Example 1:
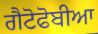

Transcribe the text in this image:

ਗੈਟੋਫੋਬੀਆ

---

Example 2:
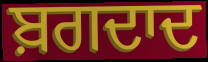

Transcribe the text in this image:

ਬ਼ਗਦਾਦ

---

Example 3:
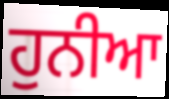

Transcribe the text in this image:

ਹੁਨੀਆ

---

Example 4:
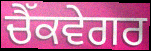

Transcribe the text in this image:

ਚੈੱਕਵੇਗਰ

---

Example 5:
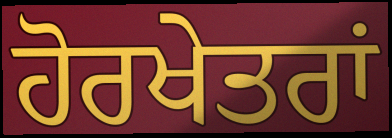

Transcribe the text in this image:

ਹੋਰਖੇਤਰਾਂ